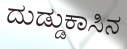
ದುಡ್ಡುಕಾಸಿನ